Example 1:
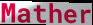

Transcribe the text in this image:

Mather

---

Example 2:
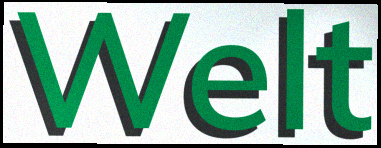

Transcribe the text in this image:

Welt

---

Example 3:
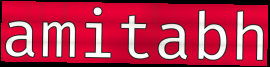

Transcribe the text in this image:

amitabh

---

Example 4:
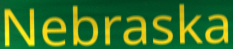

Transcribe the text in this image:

Nebraska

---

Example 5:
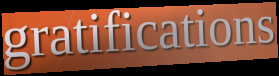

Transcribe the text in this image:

gratifications